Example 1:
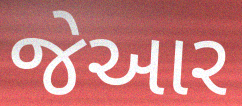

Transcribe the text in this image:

જેઆર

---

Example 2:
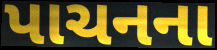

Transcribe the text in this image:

પાચનના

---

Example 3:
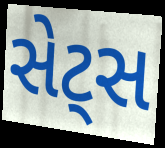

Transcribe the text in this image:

સેટ્સ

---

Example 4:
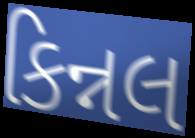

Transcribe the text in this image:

કિન્નલ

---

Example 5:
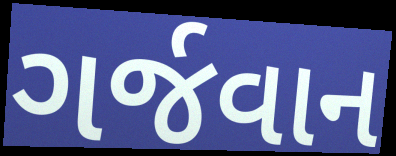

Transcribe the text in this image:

ગર્જવાન